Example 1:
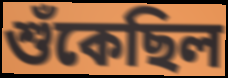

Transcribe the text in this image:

শুঁকেছিল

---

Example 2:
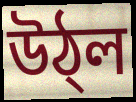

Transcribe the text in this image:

উঠ্ল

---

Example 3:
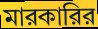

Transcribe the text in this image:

মারকারির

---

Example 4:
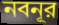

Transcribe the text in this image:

নবনূর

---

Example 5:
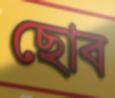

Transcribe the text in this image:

ছোব